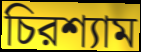
চিরশ্যাম